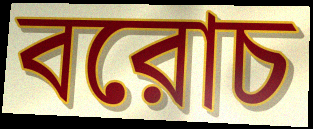
বরোচ